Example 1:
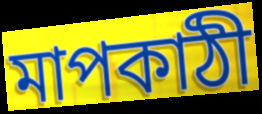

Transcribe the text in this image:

মাপকাঠী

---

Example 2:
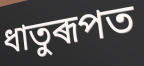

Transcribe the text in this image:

ধাতুৰূপত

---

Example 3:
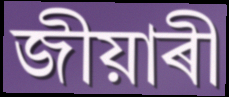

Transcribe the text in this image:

জীয়াৰী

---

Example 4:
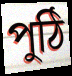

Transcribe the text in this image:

পুঠি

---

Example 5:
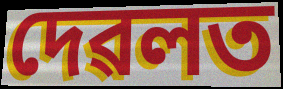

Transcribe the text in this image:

দেৱলত